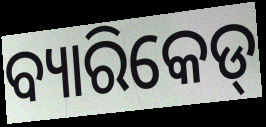
ବ୍ୟାରିକେଡ୍